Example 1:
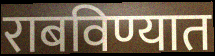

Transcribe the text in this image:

राबविण्‍यात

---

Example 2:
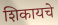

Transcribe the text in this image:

शिकायचे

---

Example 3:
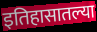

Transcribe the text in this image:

इतिहासातल्या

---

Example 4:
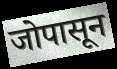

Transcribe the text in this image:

जोपासून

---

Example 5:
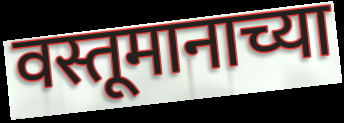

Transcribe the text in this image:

वस्तूमानाच्या